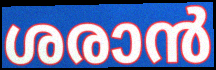
ശരാൻ